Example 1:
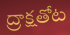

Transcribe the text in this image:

ద్రాక్షతోట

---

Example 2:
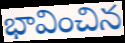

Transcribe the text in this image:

భావించిన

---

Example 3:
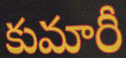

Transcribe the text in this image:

కుమారీ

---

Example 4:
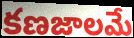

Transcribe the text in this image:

కణజాలమే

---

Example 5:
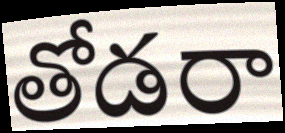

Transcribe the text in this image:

తోడరా